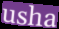
usha